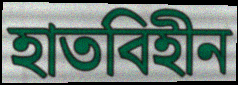
হাতবিহীন